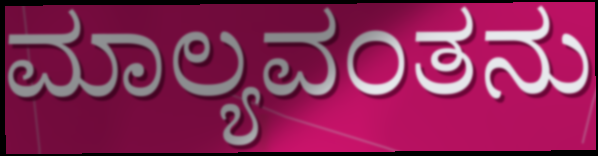
ಮಾಲ್ಯವಂತನು